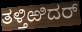
ತಳ್ತಿಱಿದರ್